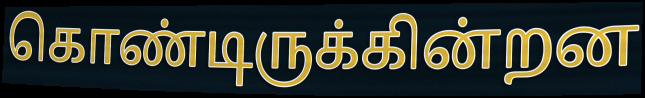
கொண்டிருக்கின்றன